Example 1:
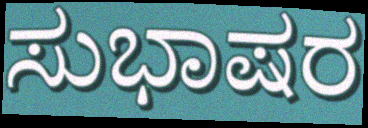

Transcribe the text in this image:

ಸುಭಾಷರ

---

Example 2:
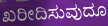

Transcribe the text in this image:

ಖರೀದಿಸುವುದೂ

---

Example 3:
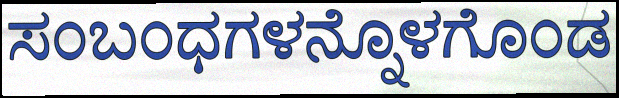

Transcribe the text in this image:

ಸಂಬಂಧಗಳನ್ನೊಳಗೊಂಡ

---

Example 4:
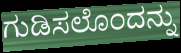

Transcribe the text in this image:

ಗುಡಿಸಲೊಂದನ್ನು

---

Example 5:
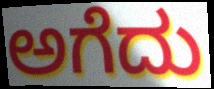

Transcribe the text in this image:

ಅಗೆದು